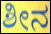
ಶೀನ